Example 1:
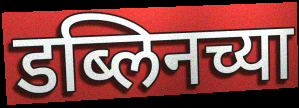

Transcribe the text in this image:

डब्लिनच्या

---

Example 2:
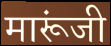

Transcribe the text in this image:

मारूंजी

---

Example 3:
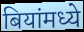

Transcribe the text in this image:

बियांमध्ये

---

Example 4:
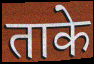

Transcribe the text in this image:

ताके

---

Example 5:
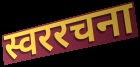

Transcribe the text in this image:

स्वररचना